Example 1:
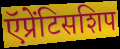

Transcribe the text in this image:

ऍप्रेंटिसशिप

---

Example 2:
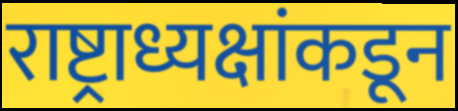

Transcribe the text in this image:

राष्ट्राध्यक्षांकडून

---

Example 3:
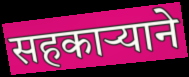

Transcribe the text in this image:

सहकाऱ्याने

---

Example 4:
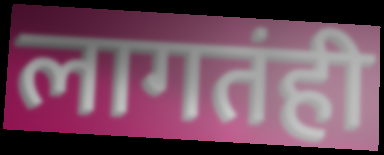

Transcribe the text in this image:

लागतंही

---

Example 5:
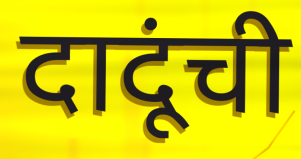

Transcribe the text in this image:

दादूंची